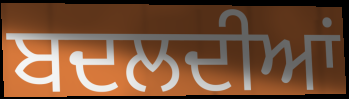
ਬਦਲਦੀਆਂ